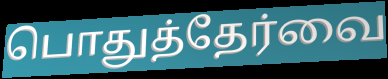
பொதுத்தேர்வை